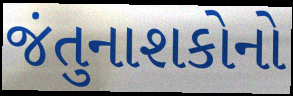
જંતુનાશકોનો